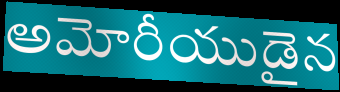
అమోరీయుడైన